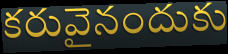
కరువైనందుకు